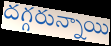
దగ్గరున్నాయి